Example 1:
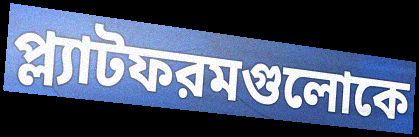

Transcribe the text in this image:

প্ল্যাটফরমগুলোকে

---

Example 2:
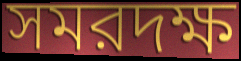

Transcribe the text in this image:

সমরদক্ষ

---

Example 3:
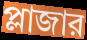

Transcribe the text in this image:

প্লাজার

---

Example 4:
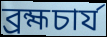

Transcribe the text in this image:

ব্রহ্মচার্য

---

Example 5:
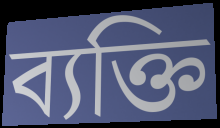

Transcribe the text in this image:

ব্যক্তি